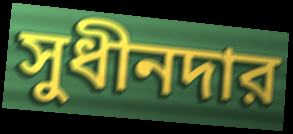
সুধীনদার